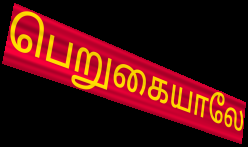
பெறுகையாலே